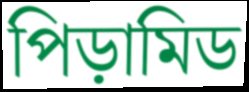
পিড়ামিড